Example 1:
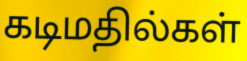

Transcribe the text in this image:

கடிமதில்கள்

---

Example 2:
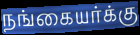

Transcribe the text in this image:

நங்கையர்க்கு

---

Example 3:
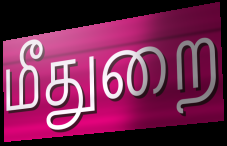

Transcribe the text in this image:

மீதுறை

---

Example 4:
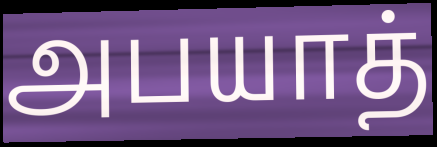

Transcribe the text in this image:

அபயாத்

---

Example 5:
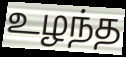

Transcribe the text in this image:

உழந்த